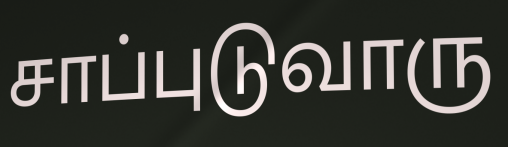
சாப்புடுவாரு